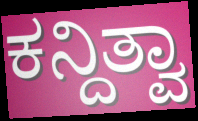
ಕನ್ದಿತ್ವಾ